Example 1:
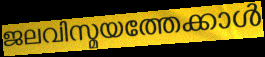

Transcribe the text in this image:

ജലവിസ്മയത്തേക്കാൾ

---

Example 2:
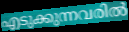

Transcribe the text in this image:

എടുക്കുന്നവരിൽ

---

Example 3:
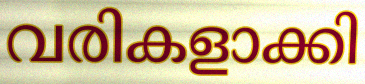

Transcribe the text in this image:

വരികളാക്കി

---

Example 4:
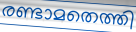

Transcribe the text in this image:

രണ്ടാമതെത്തി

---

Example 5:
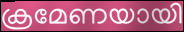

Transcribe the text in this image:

ക്രമേണയായി